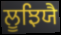
ਲੂਝਿਯੈ